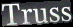
Truss